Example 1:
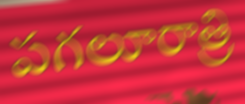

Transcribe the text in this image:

పగలూరాత్రి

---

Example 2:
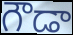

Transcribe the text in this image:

గౌడా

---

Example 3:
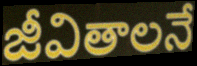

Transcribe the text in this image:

జీవితాలనే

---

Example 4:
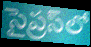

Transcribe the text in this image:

సైప్రస్‌లో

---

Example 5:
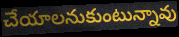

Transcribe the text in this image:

చేయాలనుకుంటున్నావు